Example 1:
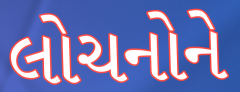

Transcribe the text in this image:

લોચનોને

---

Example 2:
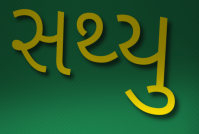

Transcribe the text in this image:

સથ્યુ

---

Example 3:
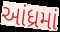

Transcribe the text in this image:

આંધ્રમાં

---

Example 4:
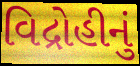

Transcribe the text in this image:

વિદ્રોહીનું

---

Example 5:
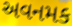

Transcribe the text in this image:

અવનમક